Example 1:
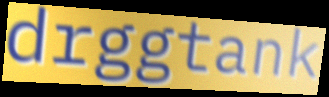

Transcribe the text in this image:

drggtank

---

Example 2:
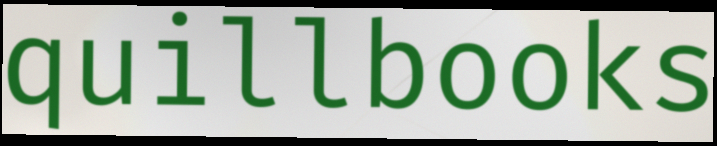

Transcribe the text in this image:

quillbooks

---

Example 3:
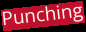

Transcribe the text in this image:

Punching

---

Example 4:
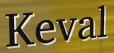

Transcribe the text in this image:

Keval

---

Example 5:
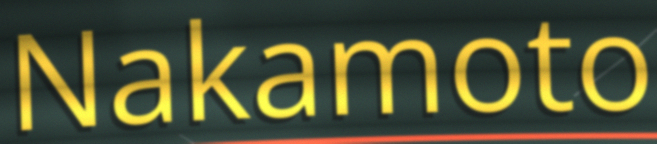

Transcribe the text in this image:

Nakamoto